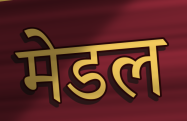
मेडल